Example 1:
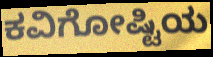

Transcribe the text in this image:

ಕವಿಗೋಷ್ಟಿಯ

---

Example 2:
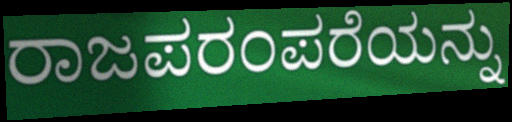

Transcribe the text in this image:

ರಾಜಪರಂಪರೆಯನ್ನು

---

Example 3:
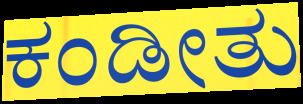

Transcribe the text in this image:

ಕಂಡೀತು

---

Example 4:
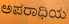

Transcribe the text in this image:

ಅಪರಾಧಿಯ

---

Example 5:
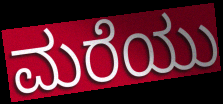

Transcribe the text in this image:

ಮರೆಯು